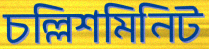
চল্লিশমিনিট